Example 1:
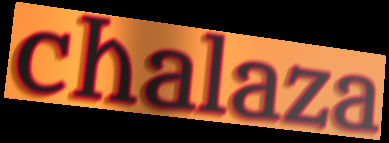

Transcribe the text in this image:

chalaza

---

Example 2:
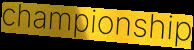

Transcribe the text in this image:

championship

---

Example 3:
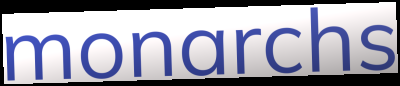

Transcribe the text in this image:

monarchs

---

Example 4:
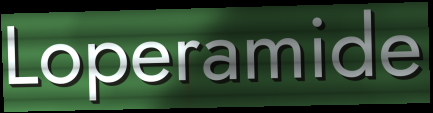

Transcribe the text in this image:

Loperamide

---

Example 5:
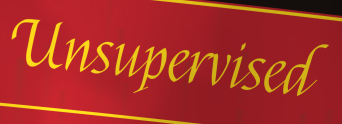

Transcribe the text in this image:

Unsupervised